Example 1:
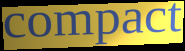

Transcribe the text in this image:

compact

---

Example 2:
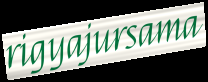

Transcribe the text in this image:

rigyajursama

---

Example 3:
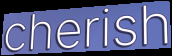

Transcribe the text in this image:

cherish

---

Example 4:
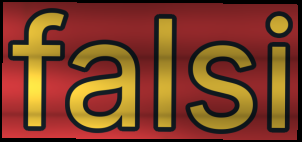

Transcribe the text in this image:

falsi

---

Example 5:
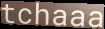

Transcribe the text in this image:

tchaaa